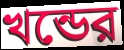
খন্ডের